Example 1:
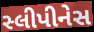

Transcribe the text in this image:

સ્લીપીનેસ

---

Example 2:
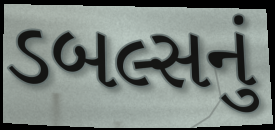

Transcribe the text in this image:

ડબલ્સનું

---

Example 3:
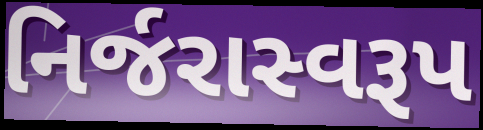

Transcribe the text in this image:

નિર્જરાસ્વરૂપ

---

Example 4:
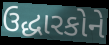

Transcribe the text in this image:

ઉદ્ધારકોને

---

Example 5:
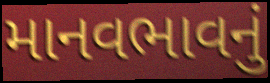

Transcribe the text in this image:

માનવભાવનું